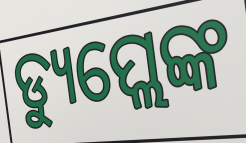
ଡ୍ୟୁପ୍ଲେଙ୍କ